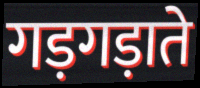
गड़गड़ाते